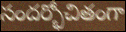
సందర్భోచితంగా